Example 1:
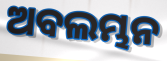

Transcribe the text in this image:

ଅବଲମ୍ଭନ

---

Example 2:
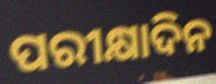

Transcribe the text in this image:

ପରୀକ୍ଷାଦିନ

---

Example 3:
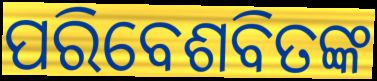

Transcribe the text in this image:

ପରିବେଶବିତଙ୍କ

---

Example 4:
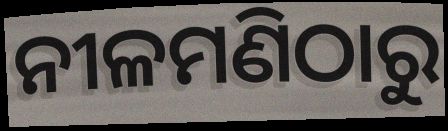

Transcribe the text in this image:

ନୀଳମଣିଠାରୁ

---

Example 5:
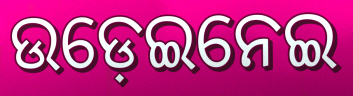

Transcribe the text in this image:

ଉଡ଼େଇନେଇ